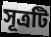
সূত্রটি